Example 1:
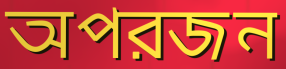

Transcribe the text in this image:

অপরজন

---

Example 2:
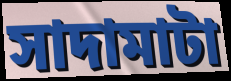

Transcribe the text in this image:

সাদামাটা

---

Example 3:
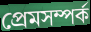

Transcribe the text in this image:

প্রেমসম্পর্ক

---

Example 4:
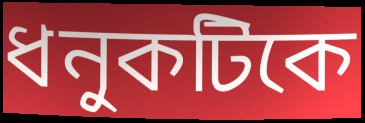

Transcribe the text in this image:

ধনুকটিকে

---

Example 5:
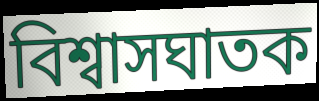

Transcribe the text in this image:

বিশ্বাসঘাতক